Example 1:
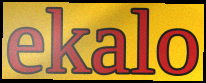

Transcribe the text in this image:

ekalo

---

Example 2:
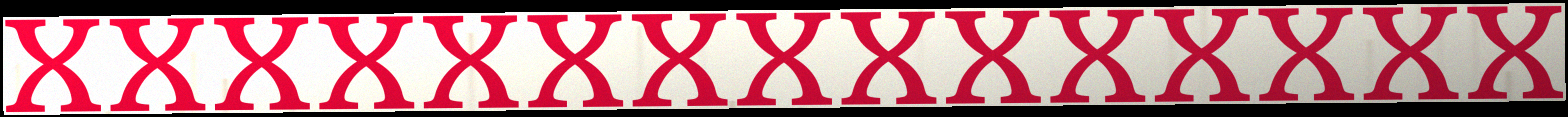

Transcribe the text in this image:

xxxxxxxxxxxxxxx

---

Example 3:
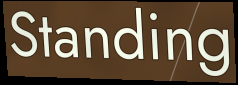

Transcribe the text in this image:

Standing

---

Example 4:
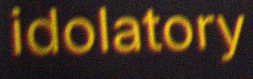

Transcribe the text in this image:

idolatory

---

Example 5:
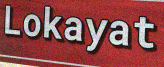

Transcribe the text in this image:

Lokayat